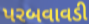
પરબવાવડી